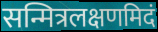
सन्मित्रलक्षणमिदं